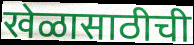
खेळासाठीची